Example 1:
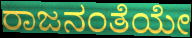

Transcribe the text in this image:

ರಾಜನಂತೆಯೇ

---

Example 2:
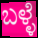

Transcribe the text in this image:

ಬಳ್ಳೆ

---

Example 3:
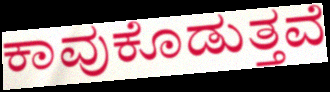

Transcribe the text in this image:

ಕಾವುಕೊಡುತ್ತವೆ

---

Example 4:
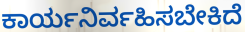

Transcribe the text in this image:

ಕಾರ್ಯನಿರ್ವಹಿಸಬೇಕಿದೆ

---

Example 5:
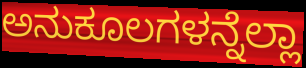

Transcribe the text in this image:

ಅನುಕೂಲಗಳನ್ನೆಲ್ಲಾ